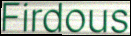
Firdous